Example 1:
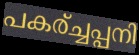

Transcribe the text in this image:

പകര്ച്ചപ്പനി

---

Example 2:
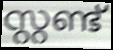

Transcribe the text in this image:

സ്റ്റണ്ട്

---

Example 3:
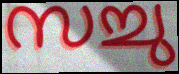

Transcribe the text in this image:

സച്ചു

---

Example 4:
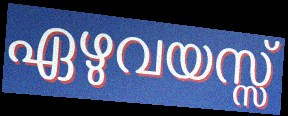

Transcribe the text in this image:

ഏഴുവയസ്സ്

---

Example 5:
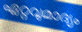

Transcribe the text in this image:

ഏറ്റവുമാദ്യം